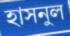
হাসনুল